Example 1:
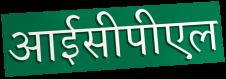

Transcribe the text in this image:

आईसीपीएल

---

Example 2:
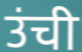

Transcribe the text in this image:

उंची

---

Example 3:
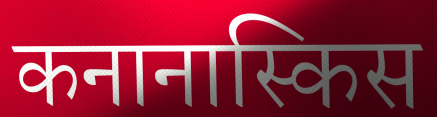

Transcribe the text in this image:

कनानास्किस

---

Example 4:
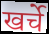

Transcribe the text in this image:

खर्चे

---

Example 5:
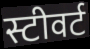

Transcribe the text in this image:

स्टीवर्ट